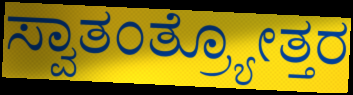
ಸ್ವಾತಂತ್ರ್ಯೋತ್ತರ